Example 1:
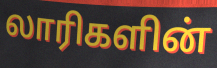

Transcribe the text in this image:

லாரிகளின்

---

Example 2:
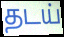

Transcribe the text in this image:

தடய்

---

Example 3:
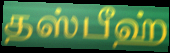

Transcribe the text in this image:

தஸ்பீஹ்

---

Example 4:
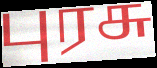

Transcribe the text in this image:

புரசு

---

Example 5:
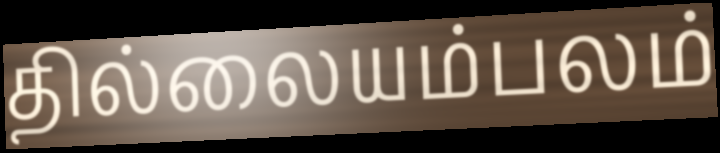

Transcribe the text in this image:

தில்லையம்பலம்